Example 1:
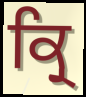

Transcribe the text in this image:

ਕ੍ਰਿ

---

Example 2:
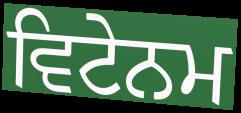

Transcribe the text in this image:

ਵਿਟੇਨਮ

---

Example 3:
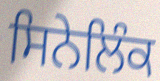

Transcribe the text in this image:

ਸਿਨੇਲਿੰਕ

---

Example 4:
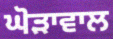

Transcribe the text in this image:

ਘੋੜਾਵਾਲ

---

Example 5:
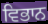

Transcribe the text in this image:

ਵਿਭਾਨ